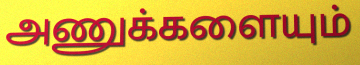
அணுக்களையும்